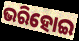
ଭରିହୋଇ